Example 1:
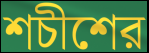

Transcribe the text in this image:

শচীশের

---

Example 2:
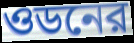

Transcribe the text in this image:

ওডনের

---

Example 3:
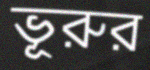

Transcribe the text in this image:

ভূরুর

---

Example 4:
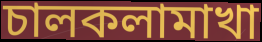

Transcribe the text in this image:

চালকলামাখা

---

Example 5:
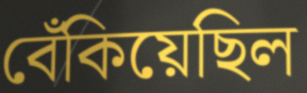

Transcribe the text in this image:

বেঁকিয়েছিল